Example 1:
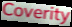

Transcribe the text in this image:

Coverity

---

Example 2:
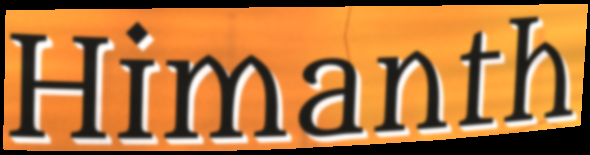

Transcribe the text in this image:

Himanth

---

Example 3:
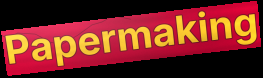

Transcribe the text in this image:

Papermaking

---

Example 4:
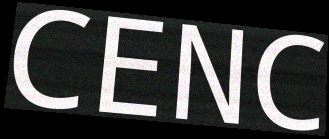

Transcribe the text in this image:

CENC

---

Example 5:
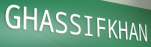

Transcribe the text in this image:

GHASSIFKHAN